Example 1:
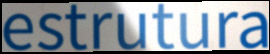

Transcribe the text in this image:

estrutura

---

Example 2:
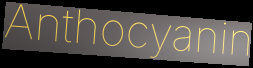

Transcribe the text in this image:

Anthocyanin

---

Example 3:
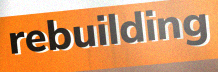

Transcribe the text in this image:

rebuilding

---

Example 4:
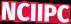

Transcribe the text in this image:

NCIIPC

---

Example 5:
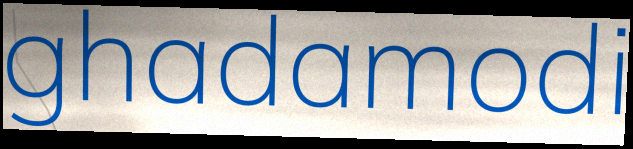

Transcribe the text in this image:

ghadamodi